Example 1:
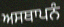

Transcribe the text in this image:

ਅਸਥਾਪਨੰ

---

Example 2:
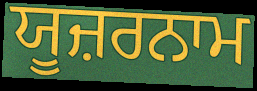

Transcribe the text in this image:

ਯੂਜ਼ਰਨਾਮ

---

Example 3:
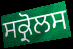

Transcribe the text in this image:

ਸਕ੍ਰੋਲਸ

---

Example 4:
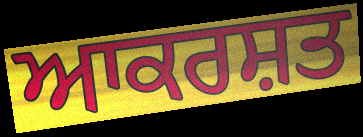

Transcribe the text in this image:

ਆਕਰਸ਼ਤ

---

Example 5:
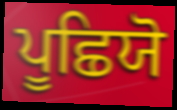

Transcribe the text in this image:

ਪੂਛਿਯੋ